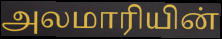
அலமாரியின்